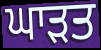
ਘਾੜਤ